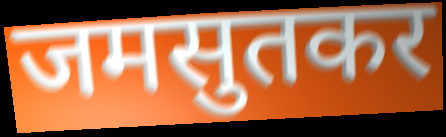
जमसुतकर